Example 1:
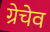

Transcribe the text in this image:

ग्रेचेव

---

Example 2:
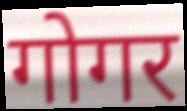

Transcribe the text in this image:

गोगर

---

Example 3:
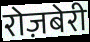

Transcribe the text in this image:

रोज़बेरी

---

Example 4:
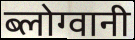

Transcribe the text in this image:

ब्लोग्वानी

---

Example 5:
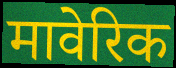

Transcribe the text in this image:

मावेरिक